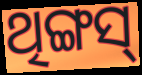
ଥିଙ୍ଗସ୍